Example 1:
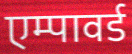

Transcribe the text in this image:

एम्पावर्ड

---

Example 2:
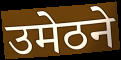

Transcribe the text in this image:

उमेठने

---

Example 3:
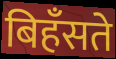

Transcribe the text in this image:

बिहँसते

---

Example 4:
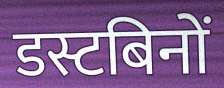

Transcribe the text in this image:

डस्टबिनों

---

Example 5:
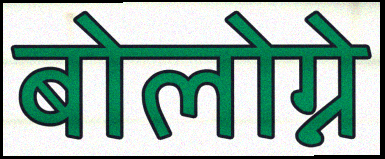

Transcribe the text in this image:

बोलोग्ने